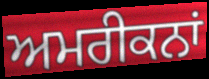
ਅਮਰੀਕਨਾਂ